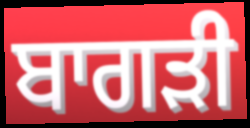
ਬਾਗੜੀ